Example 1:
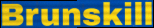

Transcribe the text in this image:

Brunskill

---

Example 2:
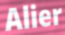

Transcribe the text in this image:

Alier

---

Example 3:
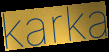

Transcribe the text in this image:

karka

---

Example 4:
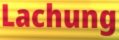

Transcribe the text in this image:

Lachung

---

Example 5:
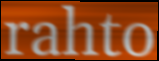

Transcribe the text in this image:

rahto